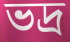
ভদ্ৰ